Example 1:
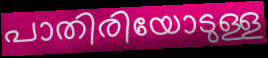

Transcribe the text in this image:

പാതിരിയോടുള്ള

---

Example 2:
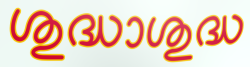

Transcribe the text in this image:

ശുദ്ധാശുദ്ധ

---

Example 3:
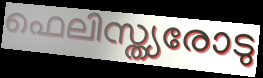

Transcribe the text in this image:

ഫെലിസ്ത്യരോടു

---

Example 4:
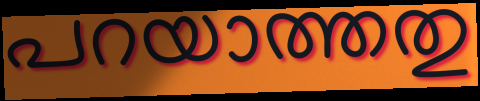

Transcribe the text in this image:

പറയാത്തതു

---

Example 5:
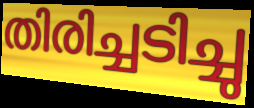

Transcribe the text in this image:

തിരിച്ചടിച്ചു